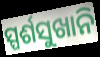
ସ୍ପର୍ଶସୁଖାନି